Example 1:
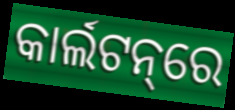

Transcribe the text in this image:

କାର୍ଲଟନ୍‌ରେ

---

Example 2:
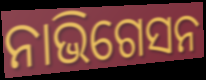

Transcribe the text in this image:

ନାଭିଗେସନ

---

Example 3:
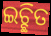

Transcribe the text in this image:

ଇଚ୍ଛିତ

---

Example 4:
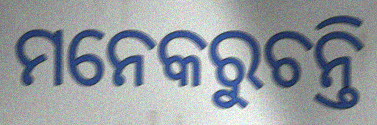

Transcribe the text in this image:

ମନେକରୁଚନ୍ତି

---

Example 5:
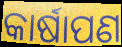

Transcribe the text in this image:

କାର୍ଷାପଣ